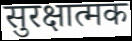
सुरक्षात्मक